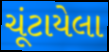
ચૂંટાયેલા